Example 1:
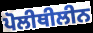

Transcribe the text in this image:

ਪੋਲੀਥੀਲੀਨ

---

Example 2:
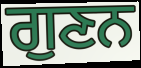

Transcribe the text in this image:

ਗੁਣਨ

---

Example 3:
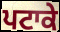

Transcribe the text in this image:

ਪਟਾਕੇ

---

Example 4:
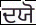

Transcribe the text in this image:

ਦਯੋ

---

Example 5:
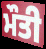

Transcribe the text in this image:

ਮੌਤੀ